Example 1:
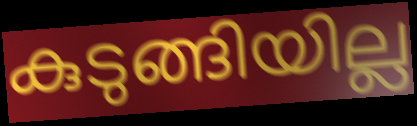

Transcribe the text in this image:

കുടുങ്ങിയില്ല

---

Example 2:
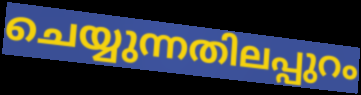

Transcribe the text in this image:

ചെയ്യുന്നതിലപ്പുറം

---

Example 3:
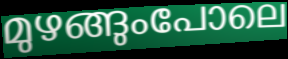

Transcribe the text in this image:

മുഴങ്ങുംപോലെ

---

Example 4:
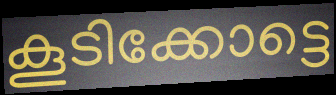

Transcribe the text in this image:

കൂടിക്കോട്ടെ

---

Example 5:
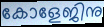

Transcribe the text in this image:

കോളേജിനു